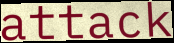
attack